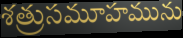
శత్రుసమూహమును